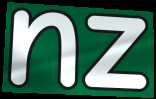
nz